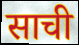
साची